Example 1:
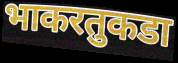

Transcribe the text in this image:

भाकरतुकडा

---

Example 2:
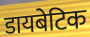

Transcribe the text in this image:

डायबेटिक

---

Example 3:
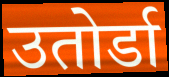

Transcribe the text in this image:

उतोर्डा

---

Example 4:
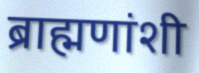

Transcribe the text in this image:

ब्राह्मणांशी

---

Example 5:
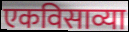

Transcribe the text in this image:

एकविसाव्या